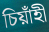
চিয়াঁহী